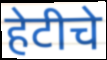
हेटीचे